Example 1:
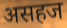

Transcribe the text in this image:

असहज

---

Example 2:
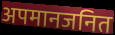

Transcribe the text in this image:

अपमानजनित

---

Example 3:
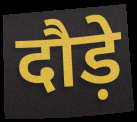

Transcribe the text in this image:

दौड़े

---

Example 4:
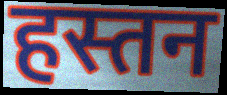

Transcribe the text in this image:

हस्तन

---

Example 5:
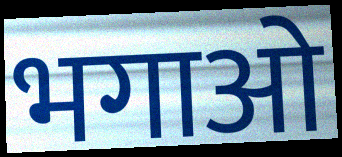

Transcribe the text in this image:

भगाओ